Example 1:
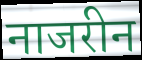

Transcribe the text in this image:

नाजरीन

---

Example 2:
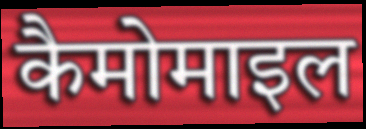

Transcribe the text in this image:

कैमोमाइल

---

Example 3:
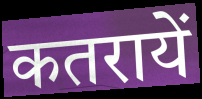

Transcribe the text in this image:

कतरायें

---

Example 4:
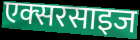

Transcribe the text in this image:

एक्‍सरसाइज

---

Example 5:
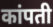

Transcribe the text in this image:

कांपती